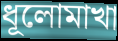
ধূলোমাখা